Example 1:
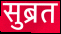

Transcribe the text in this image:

सुब्रत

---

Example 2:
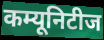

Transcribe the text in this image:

कम्यूनिटीज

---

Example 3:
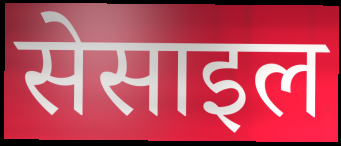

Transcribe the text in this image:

सेसाइल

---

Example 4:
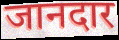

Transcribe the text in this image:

जानदार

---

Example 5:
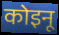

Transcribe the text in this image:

कोइनू